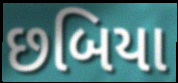
છબિયા